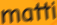
matti